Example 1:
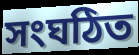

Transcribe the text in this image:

সংঘঠিত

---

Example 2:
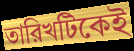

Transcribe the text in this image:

তারিখটিকেই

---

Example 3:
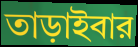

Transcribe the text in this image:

তাড়াইবার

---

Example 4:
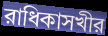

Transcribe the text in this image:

রাধিকাসখীর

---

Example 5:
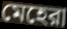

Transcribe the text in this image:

মেহেরা